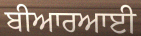
ਬੀਆਰਆਈ